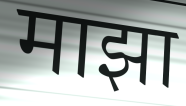
माझा